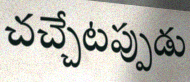
చచ్చేటప్పుడు